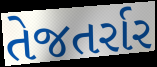
તેજતર્રાર